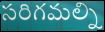
సరిగమల్ని